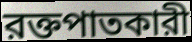
রক্তপাতকারী